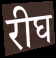
रीघ